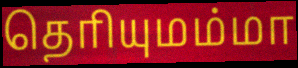
தெரியுமம்மா